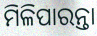
ମିଳିପାରନ୍ତା